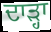
ਦਾੜ੍ਹਾ